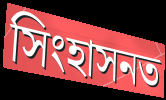
সিংহাসনত